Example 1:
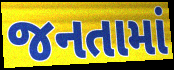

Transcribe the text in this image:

જનતામાં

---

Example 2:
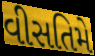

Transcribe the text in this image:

વીસતિમે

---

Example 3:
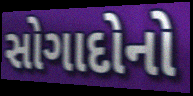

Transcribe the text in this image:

સોગાદોનો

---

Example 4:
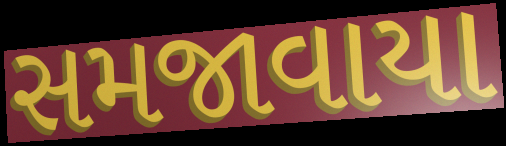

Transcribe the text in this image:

સમજાવાયા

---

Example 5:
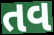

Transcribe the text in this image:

તવ